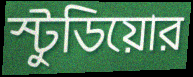
স্টুডিয়োর